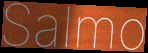
Salmo